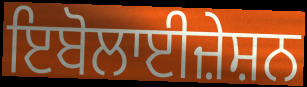
ਇਬੋਲਾਈਜ਼ੇਸ਼ਨ